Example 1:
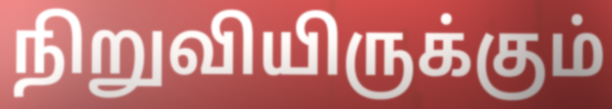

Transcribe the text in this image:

நிறுவியிருக்கும்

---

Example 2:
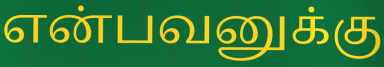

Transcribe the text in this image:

என்பவனுக்கு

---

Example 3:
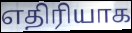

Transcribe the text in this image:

எதிரியாக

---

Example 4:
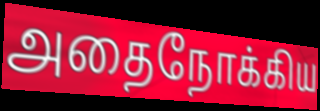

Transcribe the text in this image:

அதைநோக்கிய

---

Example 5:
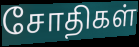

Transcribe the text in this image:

சோதிகள்